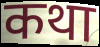
कथा